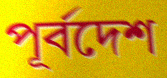
পূর্বদেশ